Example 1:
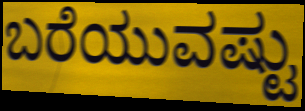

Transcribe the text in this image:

ಬರೆಯುವಷ್ಟು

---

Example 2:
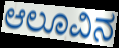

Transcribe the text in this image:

ಆಲೂವಿನ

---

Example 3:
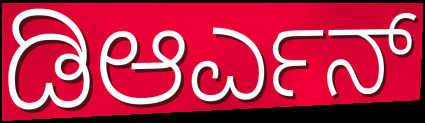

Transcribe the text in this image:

ಡಿಆರ್ಎನ್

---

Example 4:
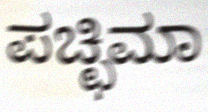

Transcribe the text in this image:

ಪಚ್ಛಿಮಾ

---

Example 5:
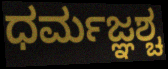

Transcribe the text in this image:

ಧರ್ಮಜ್ಞಶ್ಚ